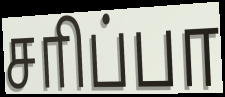
சரிப்பா